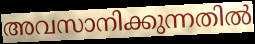
അവസാനിക്കുന്നതിൽ